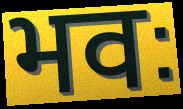
भवः